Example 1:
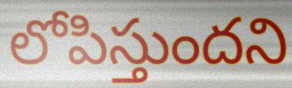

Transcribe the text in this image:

లోపిస్తుందని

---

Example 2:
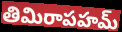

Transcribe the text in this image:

తిమిరాపహమ్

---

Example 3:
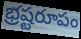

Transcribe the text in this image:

భ్రష్టరూపం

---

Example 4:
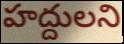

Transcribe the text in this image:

హద్దులని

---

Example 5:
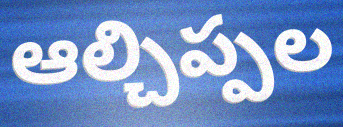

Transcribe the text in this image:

ఆల్చిప్పల